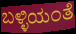
ಬಳ್ಳಿಯಂತೆ